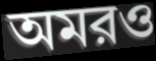
অমরও